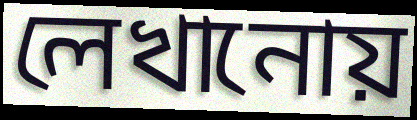
লেখানোয়